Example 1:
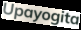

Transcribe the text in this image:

Upayogita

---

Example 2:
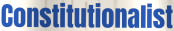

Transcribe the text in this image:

Constitutionalist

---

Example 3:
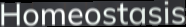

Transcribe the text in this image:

Homeostasis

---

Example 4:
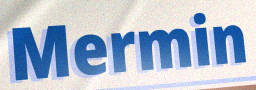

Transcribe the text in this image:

Mermin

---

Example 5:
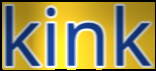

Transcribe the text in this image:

kink